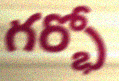
గర్భో